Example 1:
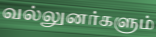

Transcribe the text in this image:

வல்லுனர்களும்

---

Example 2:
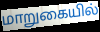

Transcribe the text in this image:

மாறுகையில்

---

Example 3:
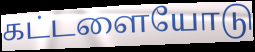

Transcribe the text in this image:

கட்டளையோடு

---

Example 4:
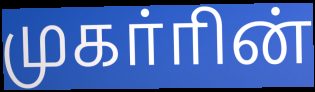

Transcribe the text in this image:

முகர்ரின்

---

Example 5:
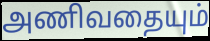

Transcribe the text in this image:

அணிவதையும்